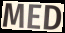
MED